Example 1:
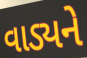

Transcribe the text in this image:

વાડ્યને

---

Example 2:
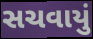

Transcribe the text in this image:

સચવાયું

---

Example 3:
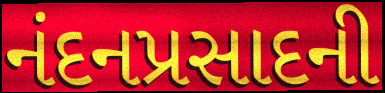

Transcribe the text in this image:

નંદનપ્રસાદની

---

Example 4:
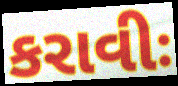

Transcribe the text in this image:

કરાવીઃ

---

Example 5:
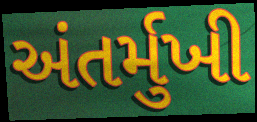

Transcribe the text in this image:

અંતર્મુખી